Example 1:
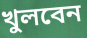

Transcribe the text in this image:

খুলবেন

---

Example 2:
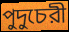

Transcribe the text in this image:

পুদুচেরী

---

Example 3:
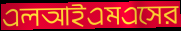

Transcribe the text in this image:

এলআইএমএসের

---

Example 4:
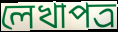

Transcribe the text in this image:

লেখাপত্র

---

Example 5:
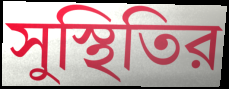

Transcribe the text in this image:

সুস্থিতির